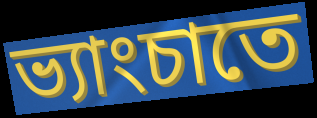
ভ্যাংচাতে